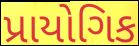
પ્રાયોગિક